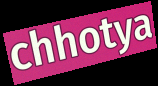
chhotya